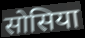
सोसिया